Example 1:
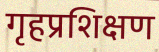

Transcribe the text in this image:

गृहप्रशिक्षण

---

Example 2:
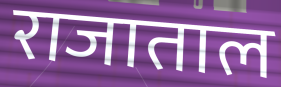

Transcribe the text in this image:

राजाताल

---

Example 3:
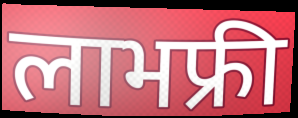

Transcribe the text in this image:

लाभफ्री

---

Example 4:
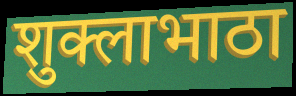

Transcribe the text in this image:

शुक्लाभाठा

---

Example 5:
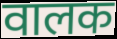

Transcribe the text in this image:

वालक